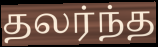
தலர்ந்த